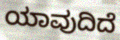
ಯಾವುದಿದೆ